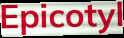
Epicotyl